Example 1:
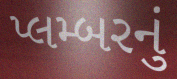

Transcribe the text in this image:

પ્લમ્બરનું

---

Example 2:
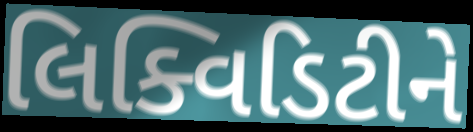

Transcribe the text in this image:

લિક્વિડિટીને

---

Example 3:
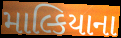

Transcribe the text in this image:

માલ્કિયાના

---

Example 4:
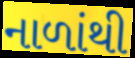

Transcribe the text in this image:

નાળાંથી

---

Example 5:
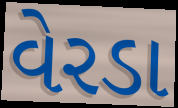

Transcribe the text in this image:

વેરડા